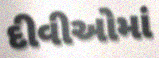
દીવીઓમાં